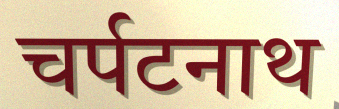
चर्पटनाथ